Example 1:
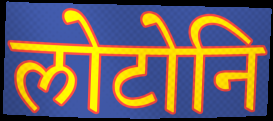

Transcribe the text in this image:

लोटोनि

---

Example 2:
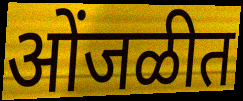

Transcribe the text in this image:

ओंजळीत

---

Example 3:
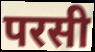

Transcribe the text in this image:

परसी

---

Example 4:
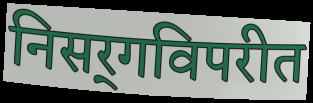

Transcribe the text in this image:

निसर्गविपरीत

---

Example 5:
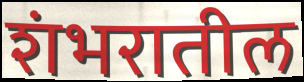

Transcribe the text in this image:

शंभरातील